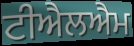
ਟੀਐਲਐਮ